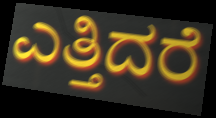
ಎತ್ತಿದರೆ